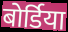
बोर्डिया